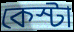
কেস্টা